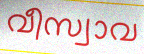
വീസ്വാവ